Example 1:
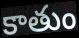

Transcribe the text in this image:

కాతుం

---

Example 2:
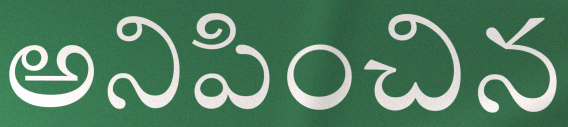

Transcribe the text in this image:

అనిపించిన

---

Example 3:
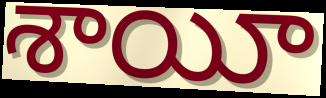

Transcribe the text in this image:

శాయీ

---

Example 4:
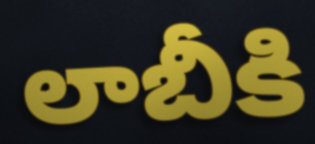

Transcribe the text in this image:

లాబీకి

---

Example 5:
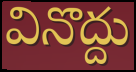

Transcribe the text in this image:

వినొద్దు